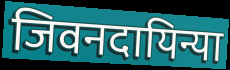
जिवनदायिन्या